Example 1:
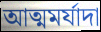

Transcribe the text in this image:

আত্মমর্যাদা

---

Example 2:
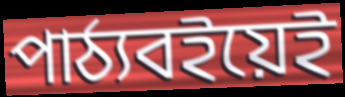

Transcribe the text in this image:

পাঠ্যবইয়েই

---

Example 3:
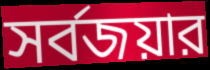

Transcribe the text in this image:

সর্বজয়ার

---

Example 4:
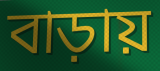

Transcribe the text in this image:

বাড়ায়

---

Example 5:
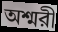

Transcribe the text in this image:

অশ্মরী